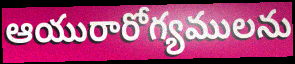
ఆయురారోగ్యములను